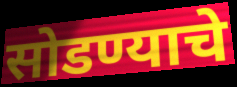
सोडण्याचे